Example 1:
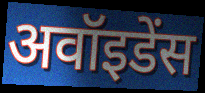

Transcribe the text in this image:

अवॉइडेंस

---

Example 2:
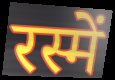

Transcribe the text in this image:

रस्‍में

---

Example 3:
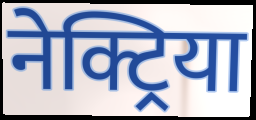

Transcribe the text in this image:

नेक्ट्रिया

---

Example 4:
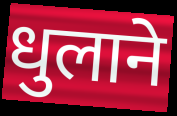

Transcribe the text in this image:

धुलाने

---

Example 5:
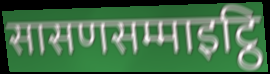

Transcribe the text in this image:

सासणसम्माइट्ठि